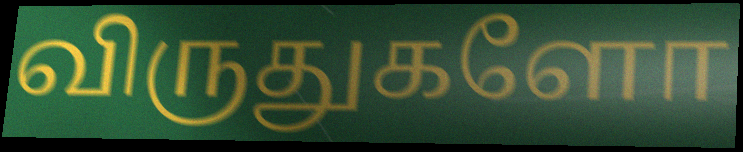
விருதுகளோ